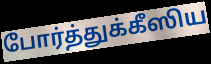
போர்த்துக்கீஸிய